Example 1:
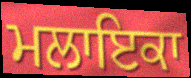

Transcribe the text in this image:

ਮਲਾਇਕਾ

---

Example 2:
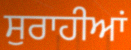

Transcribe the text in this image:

ਸੁਰਾਹੀਆਂ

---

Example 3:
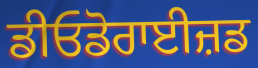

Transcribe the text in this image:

ਡੀਓਡੋਰਾਈਜ਼ਡ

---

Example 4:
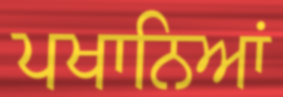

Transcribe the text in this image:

ਪਖਾਨਿਆਂ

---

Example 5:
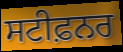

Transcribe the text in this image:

ਸਟੀਫ਼ਨਰ